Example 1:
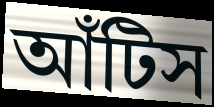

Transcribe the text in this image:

আঁটিস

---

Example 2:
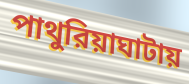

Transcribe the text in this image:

পাথুরিয়াঘাটায়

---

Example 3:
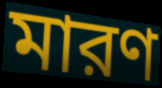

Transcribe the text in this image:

মারণ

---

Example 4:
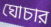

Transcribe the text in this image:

ঘোচার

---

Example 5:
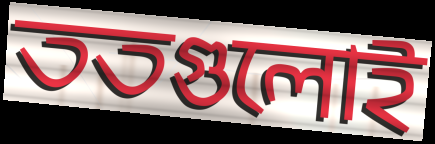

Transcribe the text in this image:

ততগুলোই